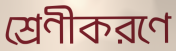
শ্রেণীকরণে